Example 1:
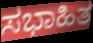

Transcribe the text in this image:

ಸಭಾಹಿತ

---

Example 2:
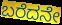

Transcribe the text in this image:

ಬರೆದನೇ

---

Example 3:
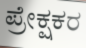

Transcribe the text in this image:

ಪ್ರೇಕ್ಷಕರ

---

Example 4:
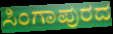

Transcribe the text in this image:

ಸಿಂಗಾಪುರದ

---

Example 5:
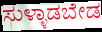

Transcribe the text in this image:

ಸುಳ್ಳಾಡಬೇಡ